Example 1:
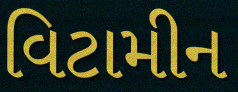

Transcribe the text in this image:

વિટામીન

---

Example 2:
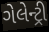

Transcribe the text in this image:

ગેલેન્ટ્રી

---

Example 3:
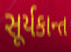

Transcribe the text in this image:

સૂર્યકાન્ત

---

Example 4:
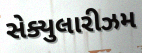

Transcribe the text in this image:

સેક્યુલારીઝમ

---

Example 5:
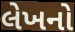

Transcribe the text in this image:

લેખનો